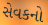
સેવકનો